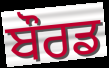
ਬੌਰਡ